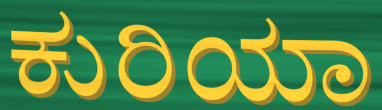
ಕುರಿಯಾ